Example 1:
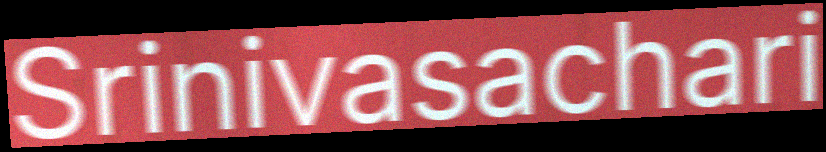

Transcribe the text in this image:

Srinivasachari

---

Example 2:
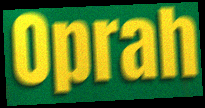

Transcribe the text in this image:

Oprah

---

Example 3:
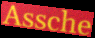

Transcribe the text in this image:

Assche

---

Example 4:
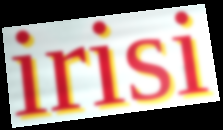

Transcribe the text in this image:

irisi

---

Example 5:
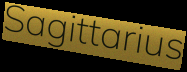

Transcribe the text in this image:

Sagittarius